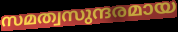
സമത്വസുന്ദരമായ